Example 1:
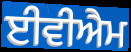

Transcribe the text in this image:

ਈਵੀਐਮ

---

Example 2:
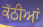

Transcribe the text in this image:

ਕੱਠੀਆਂ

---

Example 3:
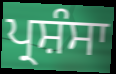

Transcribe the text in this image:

ਪ੍ਰਸ਼ੰਸਾ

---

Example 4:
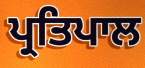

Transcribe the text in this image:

ਪ੍ਰਤਿਪਾਲ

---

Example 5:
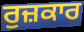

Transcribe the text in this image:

ਰੁਜ਼ਕਾਰ